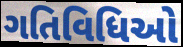
ગતિવિધિઓ